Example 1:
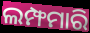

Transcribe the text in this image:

ଲମ୍ଫମାରି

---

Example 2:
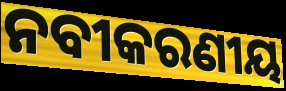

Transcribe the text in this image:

ନବୀକରଣୀୟ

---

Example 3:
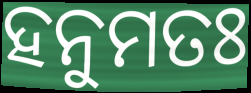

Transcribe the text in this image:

ହନୁମତଃ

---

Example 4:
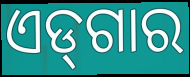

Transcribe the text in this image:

ଏଡ୍‌ଗାର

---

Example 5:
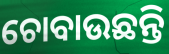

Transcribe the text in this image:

ଚୋବାଉଛନ୍ତି